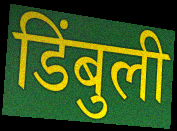
डिंबुली